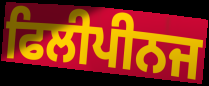
ਫਿਲੀਪੀਨਜ